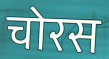
चोरस